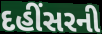
દહીંસરની